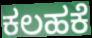
ಕಲಹಕೆ